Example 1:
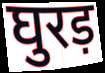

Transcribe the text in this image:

घुरड़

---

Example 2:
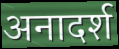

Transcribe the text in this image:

अनादर्श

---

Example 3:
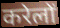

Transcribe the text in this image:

करेलों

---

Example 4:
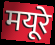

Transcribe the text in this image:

मयूरे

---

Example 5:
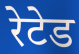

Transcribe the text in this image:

रेटेड